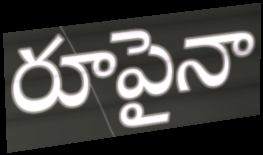
రూపైనా